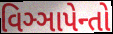
વિઞ્ઞાપેન્તો